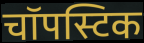
चॉपस्टिक